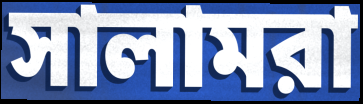
সালামরা